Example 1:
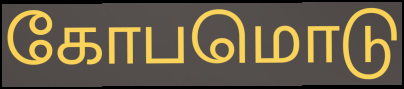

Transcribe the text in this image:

கோபமொடு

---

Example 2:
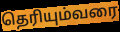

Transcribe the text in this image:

தெரியும்வரை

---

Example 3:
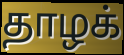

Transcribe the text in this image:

தாழக்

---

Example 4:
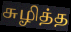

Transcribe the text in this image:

சுழித்த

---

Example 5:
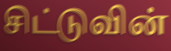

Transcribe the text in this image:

சிட்டுவின்